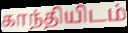
காந்தியிடம்